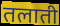
तलाती